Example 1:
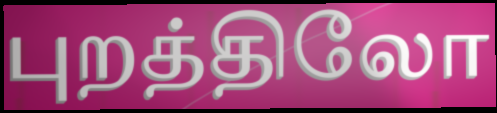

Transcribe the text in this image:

புறத்திலோ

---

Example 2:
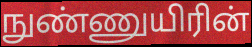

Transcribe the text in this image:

நுண்ணுயிரின்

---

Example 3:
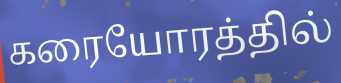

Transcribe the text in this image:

கரையோரத்தில்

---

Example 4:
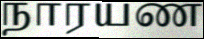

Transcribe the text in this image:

நாரயண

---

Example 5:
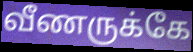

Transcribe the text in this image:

வீணருக்கே